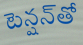
టెన్షన్‌తో